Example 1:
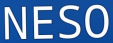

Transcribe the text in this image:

NESO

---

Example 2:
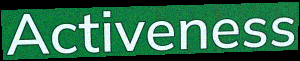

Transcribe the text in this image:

Activeness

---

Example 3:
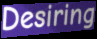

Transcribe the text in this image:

Desiring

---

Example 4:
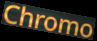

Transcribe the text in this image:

Chromo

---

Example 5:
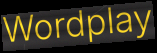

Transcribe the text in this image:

Wordplay